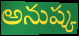
అనుష్క